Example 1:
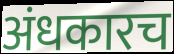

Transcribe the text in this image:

अंधकारच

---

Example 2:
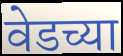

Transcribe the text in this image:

वेडच्या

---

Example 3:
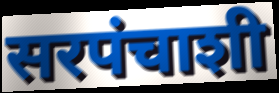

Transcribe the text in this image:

सरपंचाशी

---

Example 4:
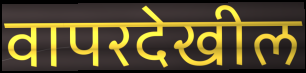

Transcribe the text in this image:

वापरदेखील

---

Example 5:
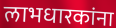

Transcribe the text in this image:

लाभधारकांना